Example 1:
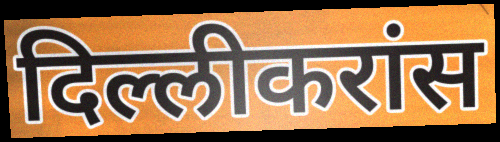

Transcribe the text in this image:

दिल्लीकरांस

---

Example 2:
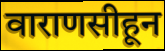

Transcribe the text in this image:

वाराणसीहून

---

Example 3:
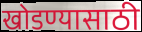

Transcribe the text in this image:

खोडण्यासाठी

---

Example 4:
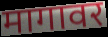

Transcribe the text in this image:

मागावर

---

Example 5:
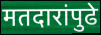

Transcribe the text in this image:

मतदारांपुढे